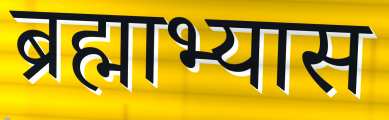
ब्रह्माभ्यास